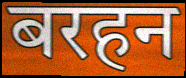
बरहन